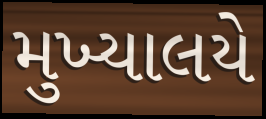
મુખ્યાલયે